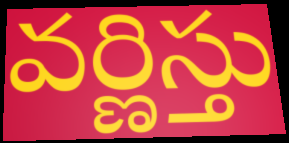
వర్ణిస్తు